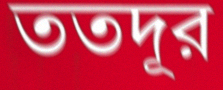
ততদূর